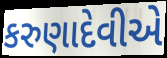
કરુણાદેવીએ